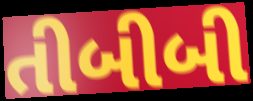
તીબીબી